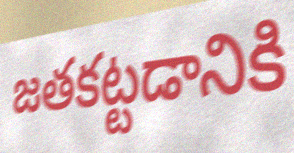
జతకట్టడానికి